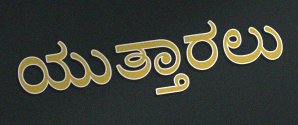
ಯುತ್ತಾರಲು